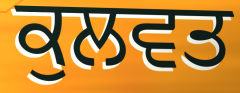
ਕੁਲਵਤ